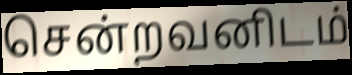
சென்றவனிடம்